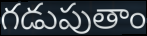
గడుపుతాం